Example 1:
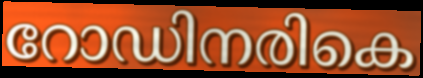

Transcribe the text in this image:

റോഡിനരികെ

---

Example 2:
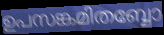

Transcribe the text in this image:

ഉപസങ്കമിതബ്ബോ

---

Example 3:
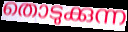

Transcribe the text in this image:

തൊടുക്കുന്ന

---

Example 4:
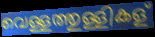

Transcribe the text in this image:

വെള്ളത്തുള്ളികള്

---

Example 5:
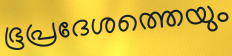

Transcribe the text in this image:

ഭൂപ്രദേശത്തെയും